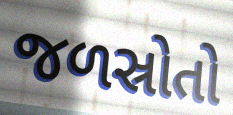
જળસ્રોતો